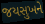
જયસુખને